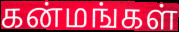
கன்மங்கள்